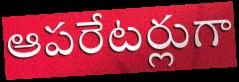
ఆపరేటర్లుగా